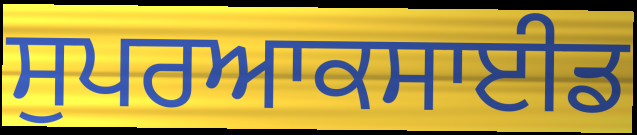
ਸੁਪਰਆਕਸਾਈਡ